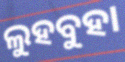
ଲୁହବୁହା